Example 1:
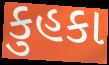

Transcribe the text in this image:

કુહકા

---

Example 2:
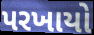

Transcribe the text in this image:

પરખાયો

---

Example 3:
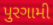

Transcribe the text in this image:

પુરગામી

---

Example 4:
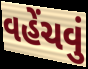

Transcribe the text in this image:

વહેંચવું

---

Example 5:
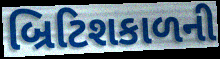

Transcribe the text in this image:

બ્રિટિશકાળની